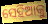
ସେହିଆକୁ